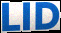
LID